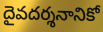
దైవదర్శనానికో